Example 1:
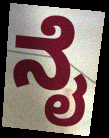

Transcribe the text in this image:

ನೈ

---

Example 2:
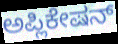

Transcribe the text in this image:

ಅಪ್ಲಿಕೇಷನ್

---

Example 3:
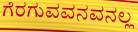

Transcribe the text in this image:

ಗೆರಗುವವನವನಲ್ಲ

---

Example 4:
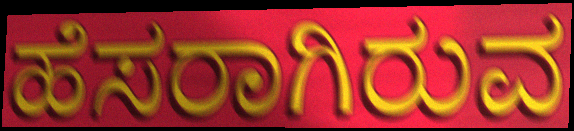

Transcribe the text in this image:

ಹೆಸರಾಗಿರುವ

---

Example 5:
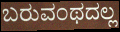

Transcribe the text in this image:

ಬರುವಂಥದಲ್ಲ